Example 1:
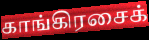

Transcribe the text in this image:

காங்கிரசைக்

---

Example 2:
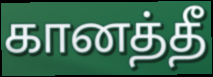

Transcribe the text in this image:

கானத்தீ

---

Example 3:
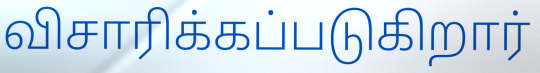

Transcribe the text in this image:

விசாரிக்கப்படுகிறார்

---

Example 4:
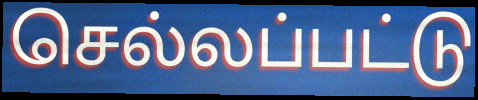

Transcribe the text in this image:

செல்லப்பட்டு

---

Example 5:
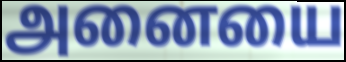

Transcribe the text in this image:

அனையை